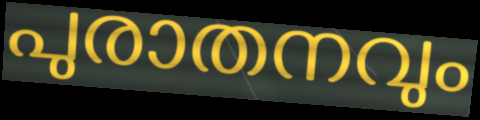
പുരാതനവും